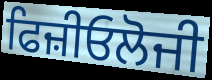
ਫਿਜ਼ੀਓਲੋਜੀ